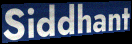
Siddhant